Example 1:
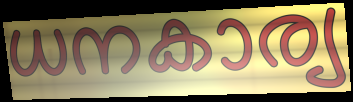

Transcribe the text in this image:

ധനകാര്യ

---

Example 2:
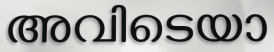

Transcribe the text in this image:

അവിടെയാ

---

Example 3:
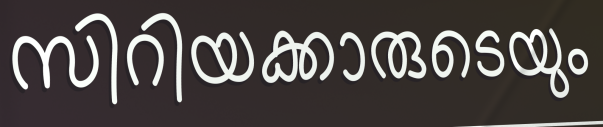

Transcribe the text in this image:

സിറിയക്കാരുടെയും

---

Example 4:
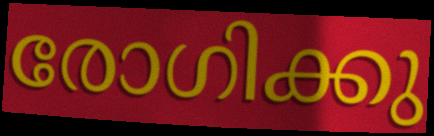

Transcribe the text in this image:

രോഗിക്കു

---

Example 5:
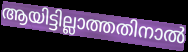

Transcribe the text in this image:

ആയിട്ടില്ലാത്തതിനാൽ